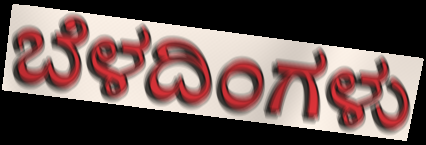
ಬೆಳದಿಂಗಳು